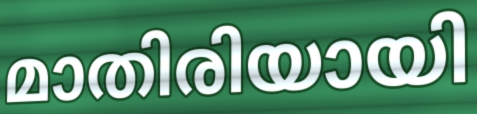
മാതിരിയായി